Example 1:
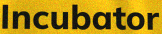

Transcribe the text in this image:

Incubator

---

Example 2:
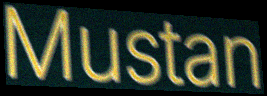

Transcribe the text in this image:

Mustan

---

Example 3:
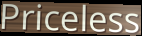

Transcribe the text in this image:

Priceless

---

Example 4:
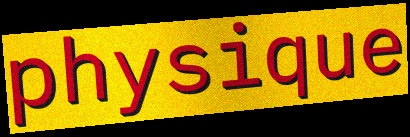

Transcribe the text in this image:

physique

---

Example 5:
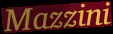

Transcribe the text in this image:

Mazzini